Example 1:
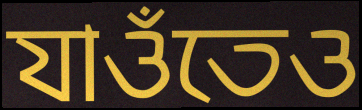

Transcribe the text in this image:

যাওঁতেও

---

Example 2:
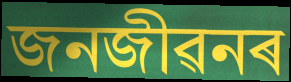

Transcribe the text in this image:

জনজীৱনৰ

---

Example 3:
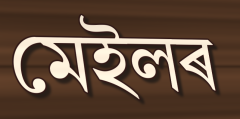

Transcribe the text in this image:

মেইলৰ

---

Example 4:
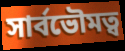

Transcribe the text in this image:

সাৰ্বভৌমত্ব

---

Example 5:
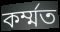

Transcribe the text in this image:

কৰ্ম্মত